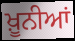
ਖ਼ੂਨੀਆਂ